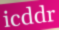
icddr